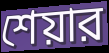
শেয়ার